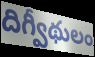
దిగ్వీథులం